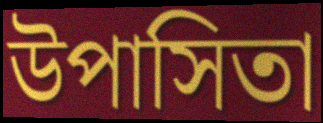
উপাসিতা